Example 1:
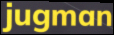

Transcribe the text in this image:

jugman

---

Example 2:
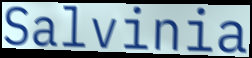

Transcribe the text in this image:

Salvinia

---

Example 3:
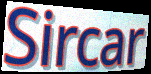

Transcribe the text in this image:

Sircar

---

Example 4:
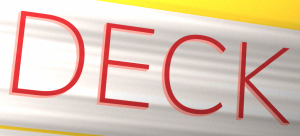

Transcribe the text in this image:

DECK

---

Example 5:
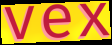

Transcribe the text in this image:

vex